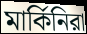
মার্কিনিরা